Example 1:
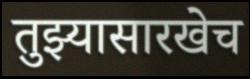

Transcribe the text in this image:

तुझ्यासारखेच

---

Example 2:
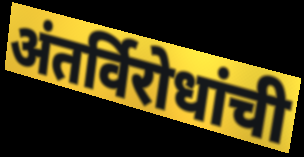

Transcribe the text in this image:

अंतर्विरोधांची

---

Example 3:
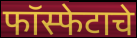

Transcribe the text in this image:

फॉस्फेटाचे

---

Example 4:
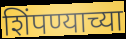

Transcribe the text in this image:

शिंपण्याच्या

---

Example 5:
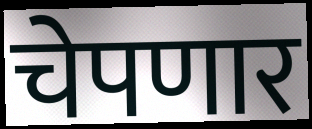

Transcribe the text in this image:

चेपणार